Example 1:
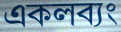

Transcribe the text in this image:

একলব্যং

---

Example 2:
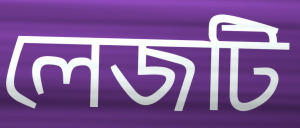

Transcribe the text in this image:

লেজটি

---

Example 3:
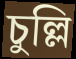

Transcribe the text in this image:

চুল্লি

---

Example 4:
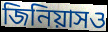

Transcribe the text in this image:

জিনিয়াসও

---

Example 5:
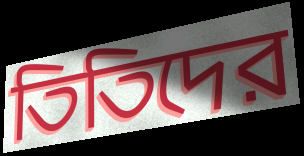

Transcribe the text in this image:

তিতিদের